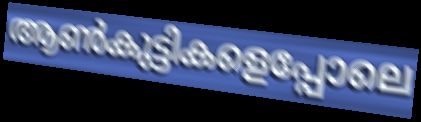
ആൺകുട്ടികളെപ്പോലെ